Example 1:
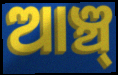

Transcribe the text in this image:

ଆଞ୍ଚ୍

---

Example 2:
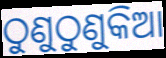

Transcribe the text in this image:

ଠୁଣୁଠୁଣୁକିଆ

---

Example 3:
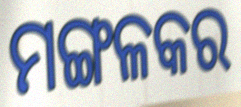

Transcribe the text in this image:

ମଙ୍ଗଳକର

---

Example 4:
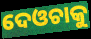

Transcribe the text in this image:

ଦେଓଚାକୁ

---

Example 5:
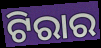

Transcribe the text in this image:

ଟିରାର